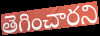
తెగించారని